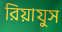
রিয়াযুস